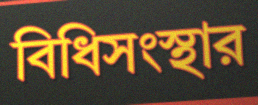
বিধিসংস্থার